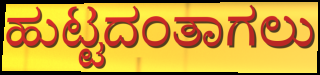
ಹುಟ್ಟದಂತಾಗಲು